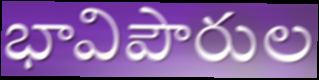
భావిపౌరుల